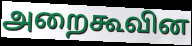
அறைகூவின